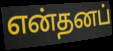
என்தனப்